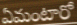
ఏమంటారో